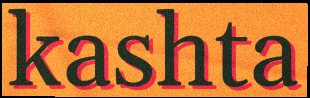
kashta